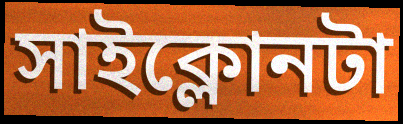
সাইক্লোনটা